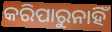
କରିପାରୁନାହିଁ